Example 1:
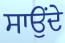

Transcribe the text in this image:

ਸਾਉਂਦੇ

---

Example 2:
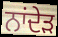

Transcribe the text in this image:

ਨਾਂਦੇੜ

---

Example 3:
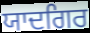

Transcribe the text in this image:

ਯਾਦਗਿਰ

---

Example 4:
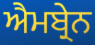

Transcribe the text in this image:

ਐਮਬ੍ਰੇਨ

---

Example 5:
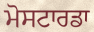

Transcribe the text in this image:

ਮੋਸਟਾਰਡਾ